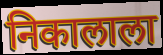
निकालाला